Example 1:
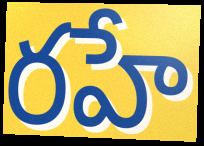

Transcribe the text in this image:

రహే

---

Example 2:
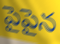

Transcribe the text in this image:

పైపైన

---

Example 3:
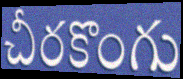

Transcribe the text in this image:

చీరకొంగు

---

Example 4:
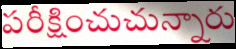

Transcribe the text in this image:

పరీక్షించుచున్నారు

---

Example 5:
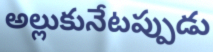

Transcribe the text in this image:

అల్లుకునేటప్పుడు